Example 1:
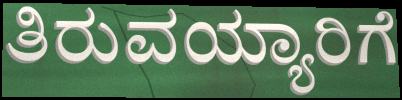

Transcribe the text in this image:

ತಿರುವಯ್ಯಾರಿಗೆ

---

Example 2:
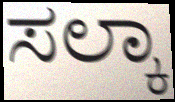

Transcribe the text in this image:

ಸಲ್ಕಾ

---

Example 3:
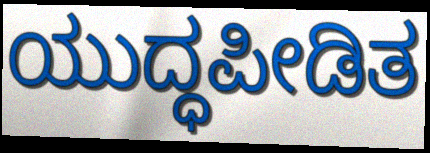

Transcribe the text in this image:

ಯುದ್ಧಪೀಡಿತ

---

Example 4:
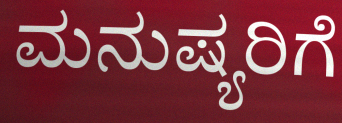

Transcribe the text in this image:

ಮನುಷ್ಯರಿಗೆ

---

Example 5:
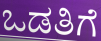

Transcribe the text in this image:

ಒಡತಿಗೆ